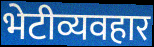
भेटीव्यवहार